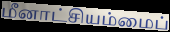
மீனாட்சியம்மைப்